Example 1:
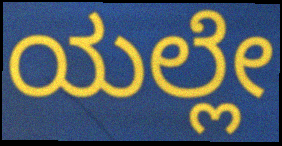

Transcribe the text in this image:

ಯಲ್ಲೇ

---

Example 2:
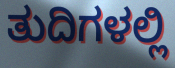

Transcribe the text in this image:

ತುದಿಗಳಲ್ಲಿ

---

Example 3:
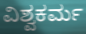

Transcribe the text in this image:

ವಿಶ್ವಕರ್ಮ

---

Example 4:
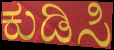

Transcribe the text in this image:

ಕುಡಿಸಿ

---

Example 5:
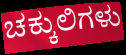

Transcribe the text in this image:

ಚಕ್ಕುಲಿಗಳು